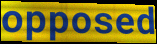
opposed